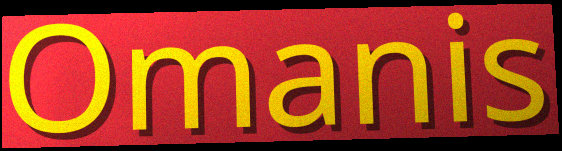
Omanis